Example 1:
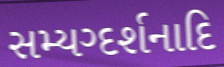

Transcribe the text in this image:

સમ્યગ્દર્શનાદિ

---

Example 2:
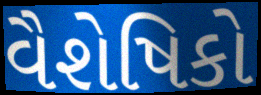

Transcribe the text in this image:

વૈશેષિકો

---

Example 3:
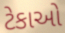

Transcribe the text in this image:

ટેકાઓ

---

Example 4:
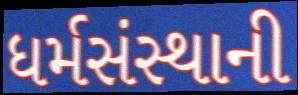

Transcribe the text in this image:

ધર્મસંસ્થાની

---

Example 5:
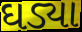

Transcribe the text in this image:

ઘડ્યા